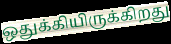
ஒதுக்கியிருக்கிறது